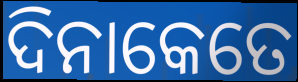
ଦିନାକେତେ